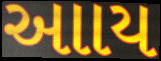
આાય